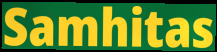
Samhitas